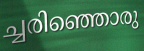
ച്ചരിഞ്ഞൊരു